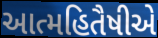
આત્મહિતૈષીએ